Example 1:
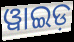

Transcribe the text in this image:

ୱାଇଡ଼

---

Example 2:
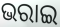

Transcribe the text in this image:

ଭରାଇ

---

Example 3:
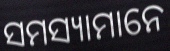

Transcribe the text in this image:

ସମସ୍ୟାମାନେ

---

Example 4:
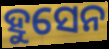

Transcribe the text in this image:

ହୁସେନ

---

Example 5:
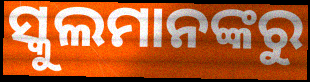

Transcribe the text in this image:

ସ୍କୁଲମାନଙ୍କରୁ